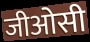
जीओसी